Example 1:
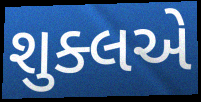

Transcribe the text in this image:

શુક્લએ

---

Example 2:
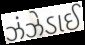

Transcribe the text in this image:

ઝંઝેડાઈ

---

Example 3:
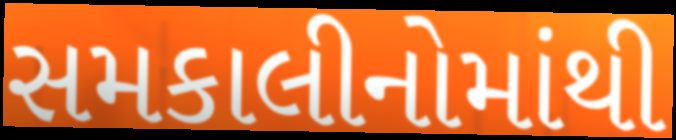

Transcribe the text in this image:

સમકાલીનોમાંથી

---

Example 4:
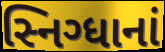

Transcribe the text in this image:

સ્નિગ્ધાનાં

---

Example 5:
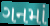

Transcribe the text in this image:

ગનમાં